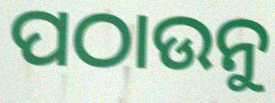
ପଠାଉନୁ